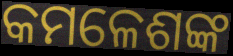
କମଳେଶଙ୍କ